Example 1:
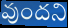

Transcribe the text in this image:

వుందని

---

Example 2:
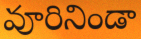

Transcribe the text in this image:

వూరినిండా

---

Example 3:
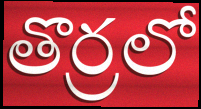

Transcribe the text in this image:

తొర్రలో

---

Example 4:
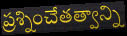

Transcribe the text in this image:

ప్రశ్నించేతత్వాన్ని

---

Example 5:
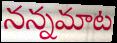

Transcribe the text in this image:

నన్నమాట